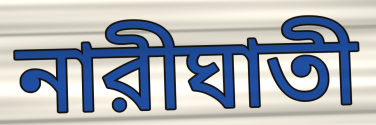
নারীঘাতী